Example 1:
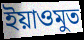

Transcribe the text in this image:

ইয়াওমুত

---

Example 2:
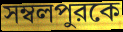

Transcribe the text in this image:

সম্বলপুরকে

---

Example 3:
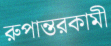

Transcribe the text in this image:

রুপান্তরকামী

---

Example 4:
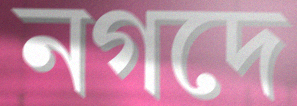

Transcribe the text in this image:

নগদে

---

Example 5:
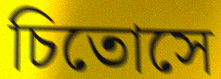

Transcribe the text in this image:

চিতোসে